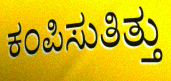
ಕಂಪಿಸುತಿತ್ತು